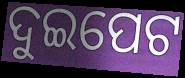
ଦୁଇପେଟ